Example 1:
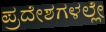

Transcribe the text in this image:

ಪ್ರದೇಶಗಳಲ್ಲೇ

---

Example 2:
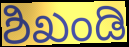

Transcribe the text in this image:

ಶಿಖಂಡಿ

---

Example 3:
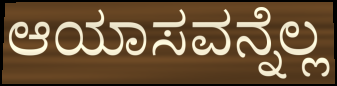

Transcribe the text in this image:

ಆಯಾಸವನ್ನೆಲ್ಲ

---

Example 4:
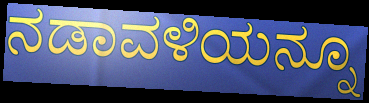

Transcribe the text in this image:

ನಡಾವಳಿಯನ್ನೂ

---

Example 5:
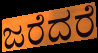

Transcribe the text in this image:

ಜರೆದರೆ